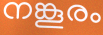
നങ്കൂരം